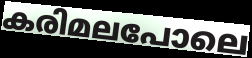
കരിമലപോലെ